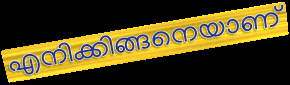
എനിക്കിങ്ങനെയാണ്